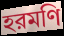
হরমণি